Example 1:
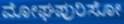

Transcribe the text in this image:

ಮೋಘಪುರಿಸೋ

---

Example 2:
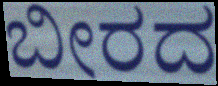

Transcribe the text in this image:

ಬೀರದ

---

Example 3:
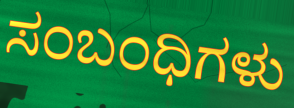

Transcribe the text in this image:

ಸಂಬಂಧಿಗಳು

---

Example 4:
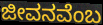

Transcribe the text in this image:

ಜೀವನವೆಂಬ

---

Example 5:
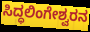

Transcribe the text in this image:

ಸಿದ್ಧಲಿಂಗೇಶ್ವರನ